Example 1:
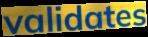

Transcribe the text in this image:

validates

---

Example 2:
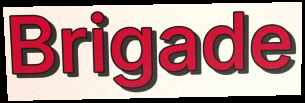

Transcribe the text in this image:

Brigade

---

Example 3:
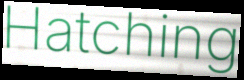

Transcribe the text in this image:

Hatching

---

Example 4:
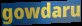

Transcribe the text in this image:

gowdaru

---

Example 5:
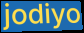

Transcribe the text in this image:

jodiyo